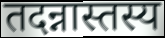
तदन्नास्तस्य